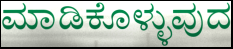
ಮಾಡಿಕೊಳ್ಳುವುದ